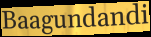
Baagundandi